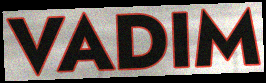
VADIM